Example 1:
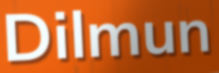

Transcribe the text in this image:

Dilmun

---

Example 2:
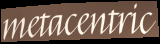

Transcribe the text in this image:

metacentric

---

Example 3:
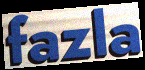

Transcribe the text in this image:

fazla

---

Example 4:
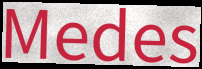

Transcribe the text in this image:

Medes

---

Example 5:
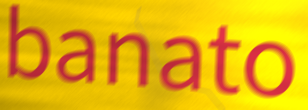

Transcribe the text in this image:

banato